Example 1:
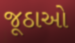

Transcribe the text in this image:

જૂઠાઓ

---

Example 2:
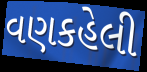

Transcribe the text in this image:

વણકહેલી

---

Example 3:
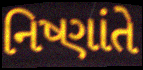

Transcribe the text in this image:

નિષ્ણાંતે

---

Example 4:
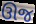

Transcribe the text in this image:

ઊજ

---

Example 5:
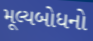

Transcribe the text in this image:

મૂલ્યબોધનો